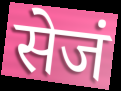
सेजं